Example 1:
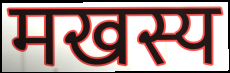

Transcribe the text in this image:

मखस्य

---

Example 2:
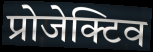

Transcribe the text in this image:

प्रोजेक्टिव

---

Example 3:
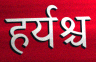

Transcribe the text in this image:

हर्यश्च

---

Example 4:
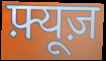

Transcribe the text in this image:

फ़्यूज़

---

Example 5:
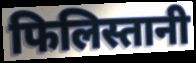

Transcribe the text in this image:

फिलिस्तानी